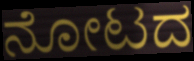
ನೋಟದ